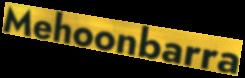
Mehoonbarra